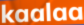
kaalaa